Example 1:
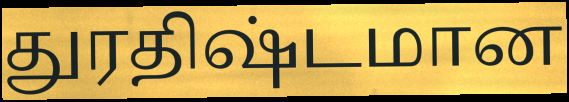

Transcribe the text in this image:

துரதிஷ்டமான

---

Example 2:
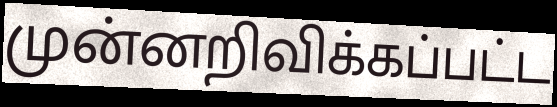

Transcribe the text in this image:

முன்னறிவிக்கப்பட்ட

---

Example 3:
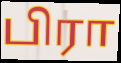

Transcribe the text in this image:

பிரா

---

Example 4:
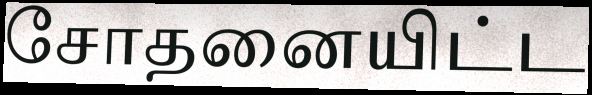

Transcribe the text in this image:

சோதனையிட்ட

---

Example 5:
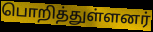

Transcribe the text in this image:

பொறித்துள்ளனர்